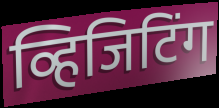
व्हिजिटिंग